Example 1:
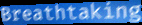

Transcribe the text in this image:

Breathtaking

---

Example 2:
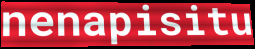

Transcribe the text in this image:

nenapisitu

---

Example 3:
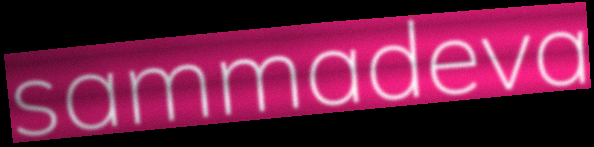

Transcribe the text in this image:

sammadeva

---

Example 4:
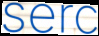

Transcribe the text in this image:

serc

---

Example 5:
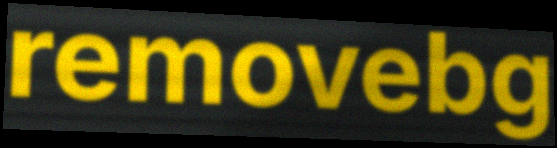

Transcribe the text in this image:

removebg